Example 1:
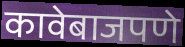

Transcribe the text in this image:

कावेबाजपणे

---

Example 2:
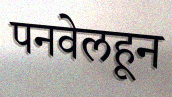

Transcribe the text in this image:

पनवेलहून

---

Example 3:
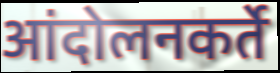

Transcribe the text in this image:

आंदोलनकर्ते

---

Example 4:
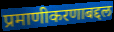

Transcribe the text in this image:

प्रमाणीकरणाबद्दल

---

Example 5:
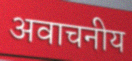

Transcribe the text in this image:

अवाचनीय